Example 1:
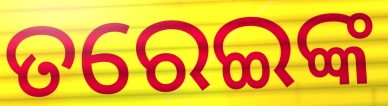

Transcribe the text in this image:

ତରେଇଙ୍କ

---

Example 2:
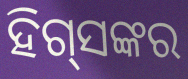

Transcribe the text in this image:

ହିଗ୍‌ସଙ୍କର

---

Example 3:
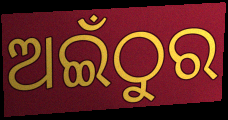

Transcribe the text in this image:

ଅଇଁଠୁର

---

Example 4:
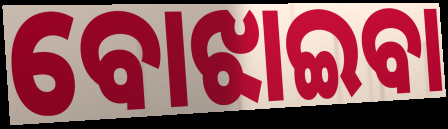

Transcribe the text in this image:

ବୋଝାଇବା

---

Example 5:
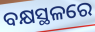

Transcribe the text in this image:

ବକ୍ଷସ୍ଥଳରେ